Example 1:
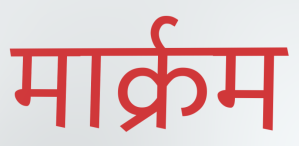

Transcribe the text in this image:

मार्क्रम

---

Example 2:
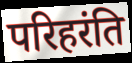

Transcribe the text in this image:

परिहरंति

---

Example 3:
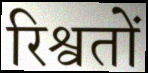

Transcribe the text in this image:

रिश्वतों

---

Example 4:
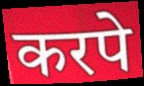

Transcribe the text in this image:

करपे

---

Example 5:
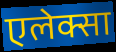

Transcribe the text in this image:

एलेक्सा